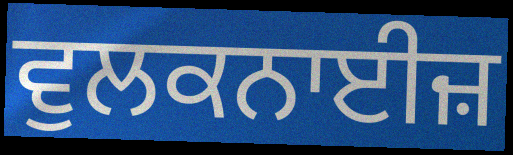
ਵੁਲਕਨਾਈਜ਼